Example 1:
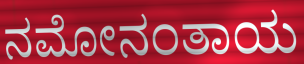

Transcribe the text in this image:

ನಮೋನಂತಾಯ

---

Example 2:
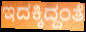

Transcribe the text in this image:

ಇದಕ್ಕಿದ್ದಂತೆ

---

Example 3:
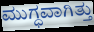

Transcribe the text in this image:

ಮುಗ್ಧವಾಗಿತ್ತು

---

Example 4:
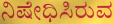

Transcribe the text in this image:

ನಿಷೇಧಿಸಿರುವ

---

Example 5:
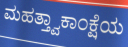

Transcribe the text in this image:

ಮಹತ್ತ್ವಾಕಾಂಕ್ಷೆಯ